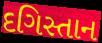
દગિસ્તાન